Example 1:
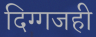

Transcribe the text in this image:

दिग्गजही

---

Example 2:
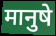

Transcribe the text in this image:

मानुषे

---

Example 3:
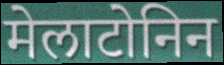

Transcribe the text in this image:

मेलाटोनिन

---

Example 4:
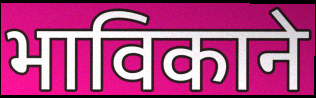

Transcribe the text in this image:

भाविकाने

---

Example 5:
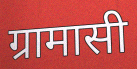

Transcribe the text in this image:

ग्रामासी